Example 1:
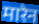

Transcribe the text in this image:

मारेन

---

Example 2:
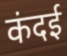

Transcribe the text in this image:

कंदई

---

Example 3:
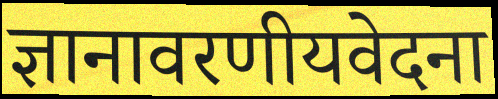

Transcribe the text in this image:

ज्ञानावरणीयवेदना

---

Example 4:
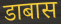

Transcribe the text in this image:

डाबास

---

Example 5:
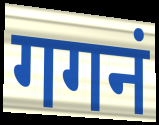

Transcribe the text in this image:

गगनं